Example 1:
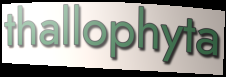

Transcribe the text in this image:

thallophyta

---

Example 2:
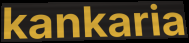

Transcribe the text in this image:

kankaria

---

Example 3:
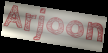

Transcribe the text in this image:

Arjoon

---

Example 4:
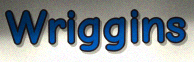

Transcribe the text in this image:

Wriggins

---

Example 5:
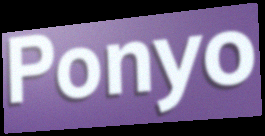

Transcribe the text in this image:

Ponyo